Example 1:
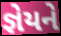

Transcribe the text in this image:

જ્ઞેયને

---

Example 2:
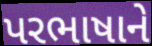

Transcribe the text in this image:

પરભાષાને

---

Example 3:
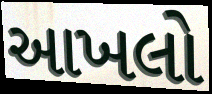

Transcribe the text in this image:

આખલો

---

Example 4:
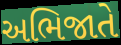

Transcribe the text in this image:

અભિજાતે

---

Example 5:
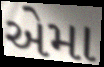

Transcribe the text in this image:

એમા